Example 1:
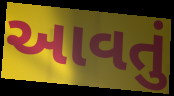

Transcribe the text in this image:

આવતું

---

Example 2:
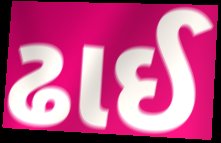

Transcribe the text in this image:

ઢાઈ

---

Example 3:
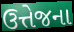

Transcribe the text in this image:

ઉત્તેજના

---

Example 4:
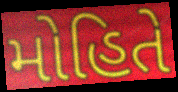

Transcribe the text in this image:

મોહિતે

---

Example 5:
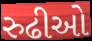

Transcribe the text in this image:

રુઢીઓ